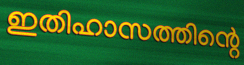
ഇതിഹാസത്തിന്റെ